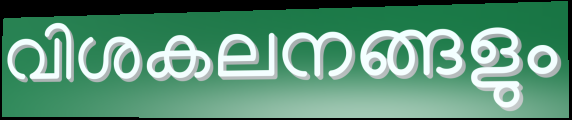
വിശകലനങ്ങളും